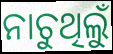
ନାଚୁଥିଲୁଁ